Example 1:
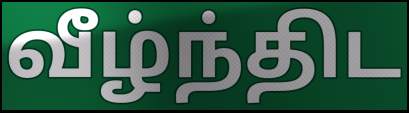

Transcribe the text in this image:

வீழ்ந்திட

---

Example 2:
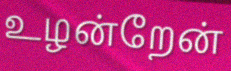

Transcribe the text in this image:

உழன்றேன்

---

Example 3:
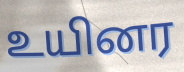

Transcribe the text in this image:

உயினர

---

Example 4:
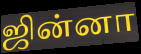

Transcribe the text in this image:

ஜின்னா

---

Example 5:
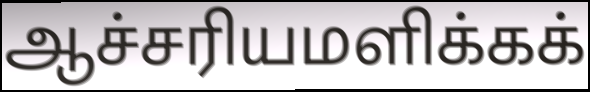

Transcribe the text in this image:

ஆச்சரியமளிக்கக்